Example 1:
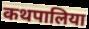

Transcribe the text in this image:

कथपालिया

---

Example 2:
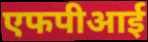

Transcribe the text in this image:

एफपीआई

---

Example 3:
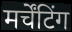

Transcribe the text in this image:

मर्चेंटिंग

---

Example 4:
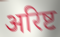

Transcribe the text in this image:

अरिष्ट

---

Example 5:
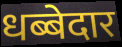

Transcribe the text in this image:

धब्बेदार